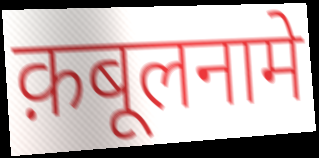
क़बूलनामे